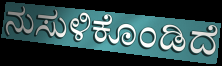
ನುಸುಳಿಕೊಂಡಿದೆ